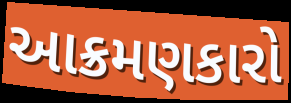
આક્રમણકારો